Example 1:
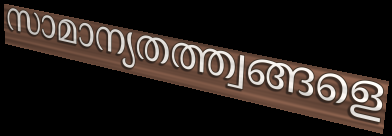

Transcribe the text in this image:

സാമാന്യതത്ത്വങ്ങളെ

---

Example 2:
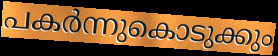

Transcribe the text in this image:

പകർന്നുകൊടുക്കും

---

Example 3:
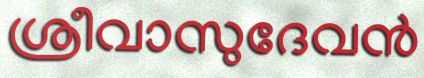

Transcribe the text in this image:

ശ്രീവാസുദേവൻ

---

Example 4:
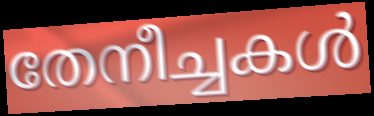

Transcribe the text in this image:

തേനീച്ചകൾ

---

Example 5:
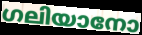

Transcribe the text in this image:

ഗലിയാനോ